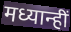
मध्यान्हीं